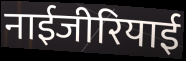
नाईजीरियाई